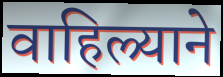
वाहिल्याने